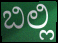
ಬಿಲ್ಲಿ